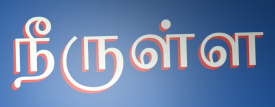
நீருள்ள